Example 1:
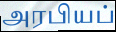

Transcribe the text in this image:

அரபியப்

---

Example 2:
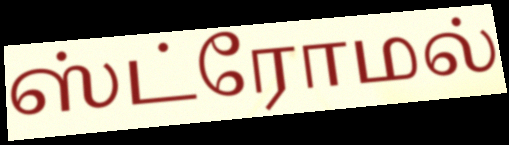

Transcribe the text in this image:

ஸ்ட்ரோமல்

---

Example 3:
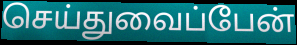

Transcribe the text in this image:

செய்துவைப்பேன்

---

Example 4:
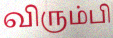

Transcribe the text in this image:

விரும்பி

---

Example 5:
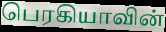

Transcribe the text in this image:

பெரகியாவின்